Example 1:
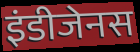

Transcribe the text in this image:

इंडीजेनस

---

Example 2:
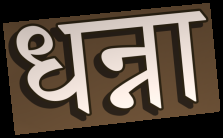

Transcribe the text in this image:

धन्ना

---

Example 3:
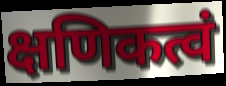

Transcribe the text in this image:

क्षणिकत्वं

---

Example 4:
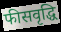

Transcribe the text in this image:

फीसवृद्धि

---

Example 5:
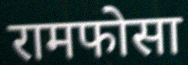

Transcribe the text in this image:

रामफोसा